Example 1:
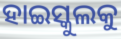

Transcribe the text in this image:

ହାଇସ୍କୁଲକୁ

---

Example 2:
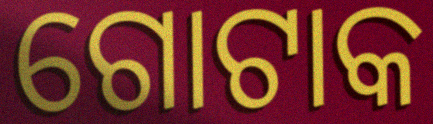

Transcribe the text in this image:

ଗୋଟାକ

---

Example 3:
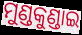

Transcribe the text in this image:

ମୁଣ୍ଡକୁଣ୍ଡାଇ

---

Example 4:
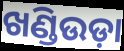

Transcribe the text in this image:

ଖଣ୍ଡିଉଡ଼ା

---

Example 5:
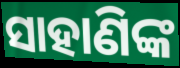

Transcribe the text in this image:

ସାହାଣିଙ୍କ